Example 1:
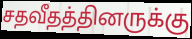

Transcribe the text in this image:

சதவீதத்தினருக்கு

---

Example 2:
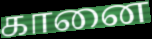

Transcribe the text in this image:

கானை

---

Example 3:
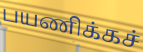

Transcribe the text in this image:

பயணிக்கச்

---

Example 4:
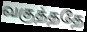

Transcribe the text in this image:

வகுத்ததே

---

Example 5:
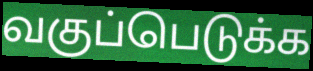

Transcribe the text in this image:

வகுப்பெடுக்க